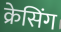
क्रेसिंग